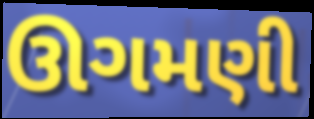
ઊગમણી